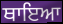
ਥਾਇਆ